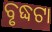
ବୃଦ୍ଧଟା